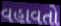
વહાવતો